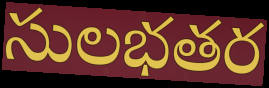
సులభతర